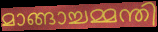
മാങ്ങാച്ചമ്മന്തി